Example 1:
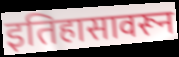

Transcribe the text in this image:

इतिहासावरून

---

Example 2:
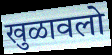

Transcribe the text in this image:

खुळावलो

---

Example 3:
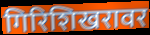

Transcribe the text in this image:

गिरिशिखरावर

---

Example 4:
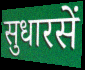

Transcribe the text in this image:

सुधारसें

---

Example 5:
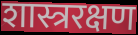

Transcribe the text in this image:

शास्त्ररक्षण